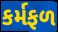
કર્મફળ